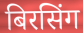
बिरसिंग